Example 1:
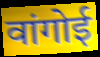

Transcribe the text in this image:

वांगोई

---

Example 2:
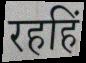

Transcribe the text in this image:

रहहिं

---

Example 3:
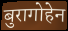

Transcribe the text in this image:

बुरागोहेन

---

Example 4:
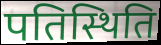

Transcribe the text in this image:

पतिस्थिति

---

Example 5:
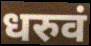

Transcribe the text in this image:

धरुवं